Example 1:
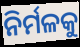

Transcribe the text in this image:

ନିର୍ମଳକୁ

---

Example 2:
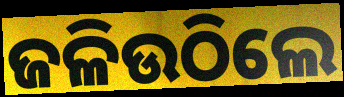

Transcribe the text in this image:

ଜଳିଉଠିଲେ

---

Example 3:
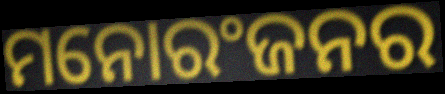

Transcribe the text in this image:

ମନୋରଂଜନର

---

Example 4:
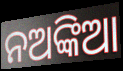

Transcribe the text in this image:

ନଅଙ୍କିଆ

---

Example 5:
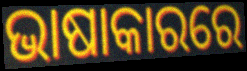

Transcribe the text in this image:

ଭାଷାକାରରେ